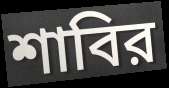
শাবির